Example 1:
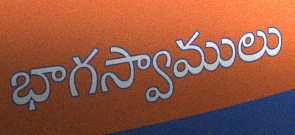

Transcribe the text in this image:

భాగస్వాములు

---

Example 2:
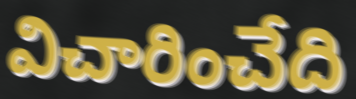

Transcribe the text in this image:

విచారించేది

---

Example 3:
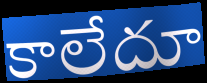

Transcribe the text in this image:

కాలేదూ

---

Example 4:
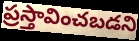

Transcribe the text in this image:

ప్రస్తావించబడని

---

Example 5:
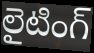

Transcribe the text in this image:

లైటింగ్